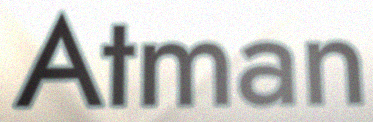
Atman